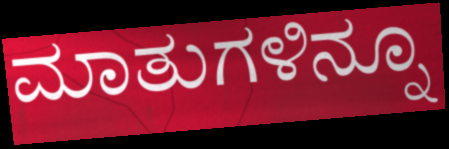
ಮಾತುಗಳಿನ್ನೂ